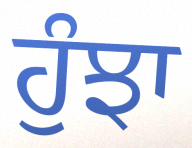
ਹੁੰਝਾ